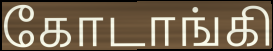
கோடாங்கி